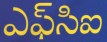
ఎఫ్‌సిఐ